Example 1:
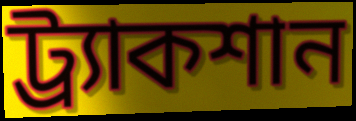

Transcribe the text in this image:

ট্র্যাকশান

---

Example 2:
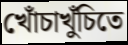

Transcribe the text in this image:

খোঁচাখুঁচিতে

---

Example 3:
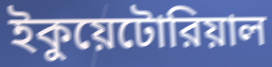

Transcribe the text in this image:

ইকুয়েটোরিয়াল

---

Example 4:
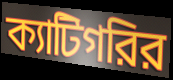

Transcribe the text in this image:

ক্যাটিগরির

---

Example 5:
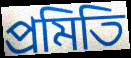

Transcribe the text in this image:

প্রমিতি